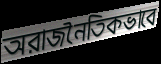
অরাজনৈতিকভাবে